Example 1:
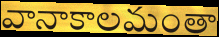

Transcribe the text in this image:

వానాకాలమంతా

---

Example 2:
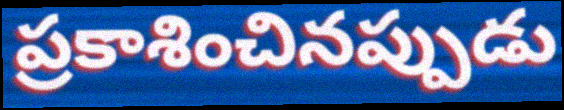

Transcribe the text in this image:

ప్రకాశించినప్పుడు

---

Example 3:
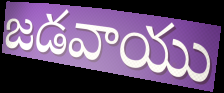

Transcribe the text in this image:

జడవాయు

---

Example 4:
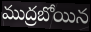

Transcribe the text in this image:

ముద్రబోయిన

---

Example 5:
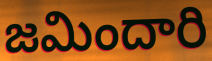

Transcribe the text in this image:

జమిందారి